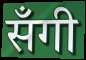
सँगी